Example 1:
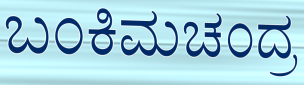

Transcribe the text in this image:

ಬಂಕಿಮಚಂದ್ರ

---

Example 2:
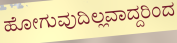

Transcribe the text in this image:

ಹೋಗುವುದಿಲ್ಲವಾದ್ದರಿಂದ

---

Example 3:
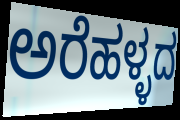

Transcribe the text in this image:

ಅರೆಹಳ್ಳದ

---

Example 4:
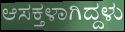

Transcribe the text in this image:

ಆಸಕ್ತಳಾಗಿದ್ದಳು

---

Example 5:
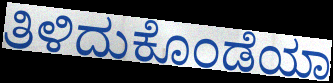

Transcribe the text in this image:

ತಿಳಿದುಕೊಂಡೆಯಾ